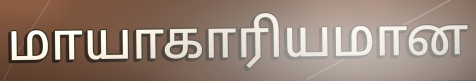
மாயாகாரியமான